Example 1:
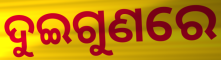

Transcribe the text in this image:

ଦୁଇଗୁଣରେ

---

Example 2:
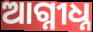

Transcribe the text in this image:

ଆଗ୍ନୀଧ୍ନ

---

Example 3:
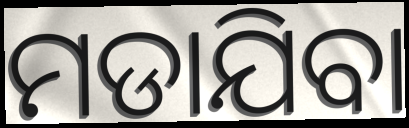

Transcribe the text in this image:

ମଡାଯିବା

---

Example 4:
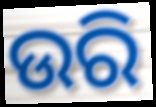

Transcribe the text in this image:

ଉରି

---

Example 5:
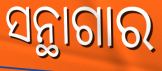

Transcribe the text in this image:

ସନ୍ଥାଗାର